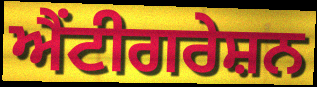
ਐਂਟੀਗਰੇਸ਼ਨ